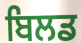
ਬਿਲਡ